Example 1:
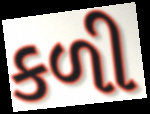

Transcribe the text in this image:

કળી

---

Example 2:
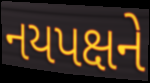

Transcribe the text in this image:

નયપક્ષને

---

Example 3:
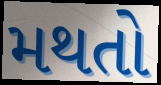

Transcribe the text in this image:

મથતો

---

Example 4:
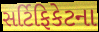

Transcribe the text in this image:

સર્ટિફિકેટના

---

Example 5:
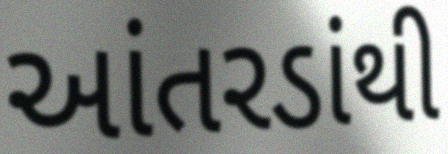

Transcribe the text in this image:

આંતરડાંથી